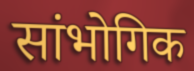
सांभोगिक